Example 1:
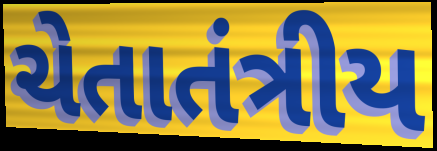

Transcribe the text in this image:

ચેતાતંત્રીય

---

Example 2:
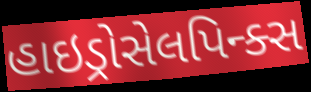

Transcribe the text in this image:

હાઇડ્રોસેલપિન્ક્સ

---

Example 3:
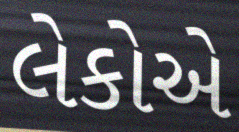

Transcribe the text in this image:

લેકોએ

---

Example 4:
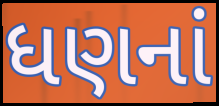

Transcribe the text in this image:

ધણનાં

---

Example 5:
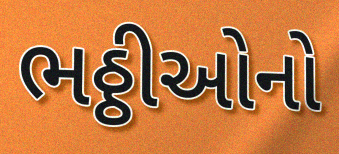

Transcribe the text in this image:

ભઠ્ઠીઓનો